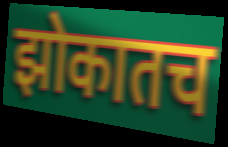
झोकातच